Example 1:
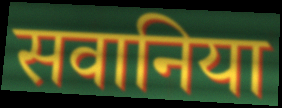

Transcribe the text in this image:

सवानिया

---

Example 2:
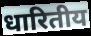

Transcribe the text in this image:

धारितीय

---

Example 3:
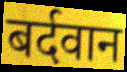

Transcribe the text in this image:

बर्दवान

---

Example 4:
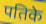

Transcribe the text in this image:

पतिके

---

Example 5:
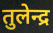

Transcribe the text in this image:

तुलेन्द्र